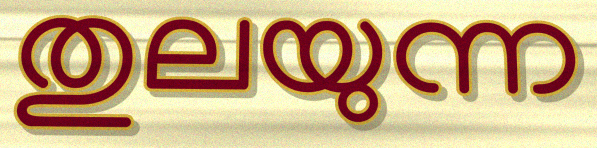
തുലയുന്ന